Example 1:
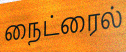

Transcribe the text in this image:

நைட்ரைல்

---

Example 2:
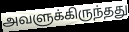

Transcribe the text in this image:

அவளுக்கிருந்தது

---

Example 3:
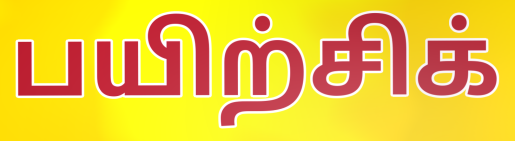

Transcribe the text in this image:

பயிற்சிக்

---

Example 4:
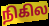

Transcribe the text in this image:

நிகில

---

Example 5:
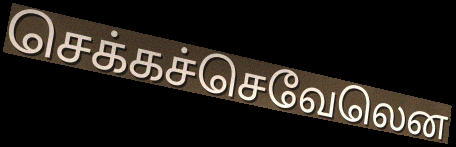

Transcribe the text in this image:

செக்கச்செவேலென